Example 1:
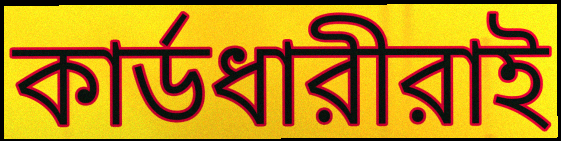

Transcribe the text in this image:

কার্ডধারীরাই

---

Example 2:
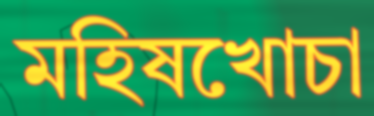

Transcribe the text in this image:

মহিষখোচা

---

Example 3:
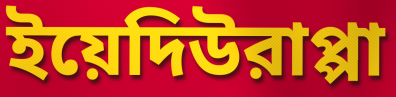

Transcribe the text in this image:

ইয়েদিউরাপ্পা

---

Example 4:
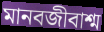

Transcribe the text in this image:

মানবজীবাশ্ম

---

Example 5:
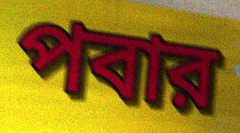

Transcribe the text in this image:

পবার